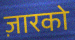
ज़ारको